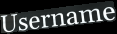
Username